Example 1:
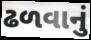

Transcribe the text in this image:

ઢળવાનું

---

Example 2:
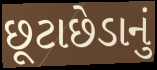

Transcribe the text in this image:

છૂટાછેડાનું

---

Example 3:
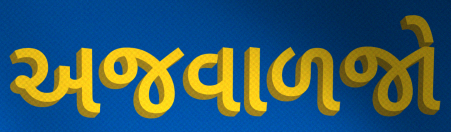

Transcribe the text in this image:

અજવાળજો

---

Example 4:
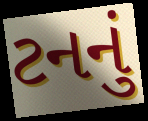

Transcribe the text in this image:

ટનનું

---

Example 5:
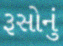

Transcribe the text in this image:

રૂસોનું